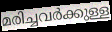
മരിച്ചവർക്കുള്ള